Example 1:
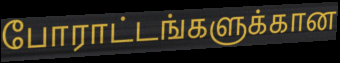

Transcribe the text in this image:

போராட்டங்களுக்கான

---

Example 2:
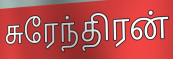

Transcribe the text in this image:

சுரேந்திரன்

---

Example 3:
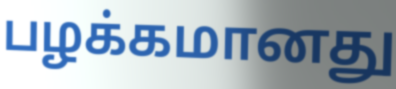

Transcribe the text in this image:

பழக்கமானது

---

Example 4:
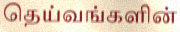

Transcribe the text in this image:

தெய்வங்களின்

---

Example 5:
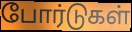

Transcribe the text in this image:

போர்டுகள்